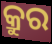
କ୍ରୁର